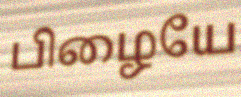
பிழையே